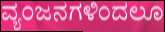
ವ್ಯಂಜನಗಳಿಂದಲೂ